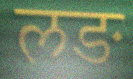
लङ